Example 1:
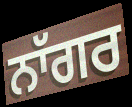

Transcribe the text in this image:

ਨਾੱਗਰ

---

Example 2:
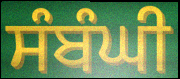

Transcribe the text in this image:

ਸੰਬੰਘੀ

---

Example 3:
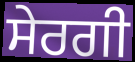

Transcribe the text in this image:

ਸੇਰਗੀ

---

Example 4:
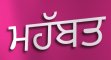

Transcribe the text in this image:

ਮਹੱਬਤ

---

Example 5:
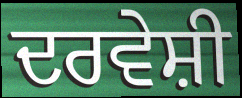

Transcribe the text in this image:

ਦਰਵੇਸ਼ੀ